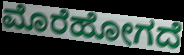
ಮೊರೆಹೋಗದೆ